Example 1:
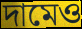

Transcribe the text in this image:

দামেও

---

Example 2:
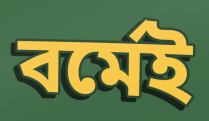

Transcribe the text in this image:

বর্মেই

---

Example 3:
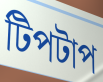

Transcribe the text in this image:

টিপটাপ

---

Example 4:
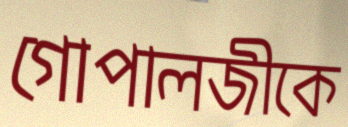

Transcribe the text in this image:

গোপালজীকে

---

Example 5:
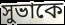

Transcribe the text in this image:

সুভাকে